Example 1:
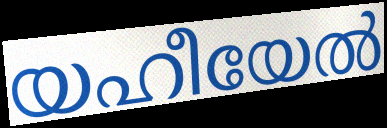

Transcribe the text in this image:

യഹീയേൽ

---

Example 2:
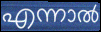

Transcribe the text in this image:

എന്നാൽ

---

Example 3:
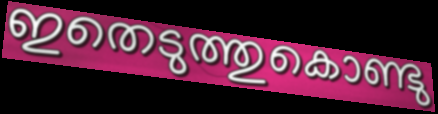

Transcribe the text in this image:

ഇതെടുത്തുകൊണ്ടു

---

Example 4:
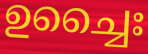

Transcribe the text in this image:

ഉച്ചൈഃ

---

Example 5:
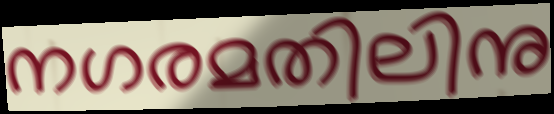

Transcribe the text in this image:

നഗരമതിലിനു